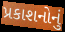
પ્રકાશનોનું